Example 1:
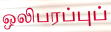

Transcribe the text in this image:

ஒலிபரப்புப்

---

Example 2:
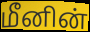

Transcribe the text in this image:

மீனின்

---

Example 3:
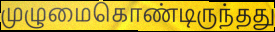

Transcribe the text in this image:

முழுமைகொண்டிருந்தது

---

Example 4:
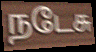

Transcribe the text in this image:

நடேசு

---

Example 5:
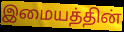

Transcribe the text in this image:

இமையத்தின்